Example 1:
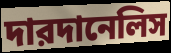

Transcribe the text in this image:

দারদানেলিস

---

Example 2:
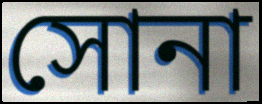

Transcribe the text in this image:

সোনা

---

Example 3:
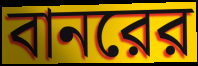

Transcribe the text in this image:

বানরের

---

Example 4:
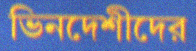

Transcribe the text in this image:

ভিনদেশীদের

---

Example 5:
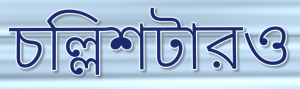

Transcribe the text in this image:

চল্লিশটারও